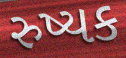
રુષ્યક